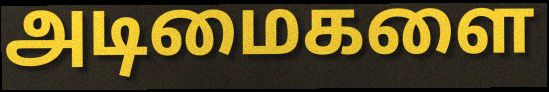
அடிமைகளை